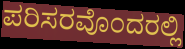
ಪರಿಸರವೊಂದರಲ್ಲಿ